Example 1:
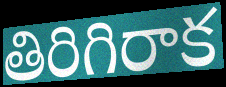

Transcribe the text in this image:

తిరిగిరాక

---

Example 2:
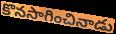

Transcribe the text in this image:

కొనసాగించినాడు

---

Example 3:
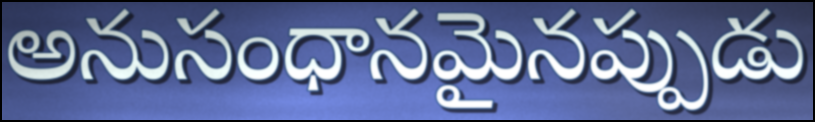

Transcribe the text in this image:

అనుసంధానమైనప్పుడు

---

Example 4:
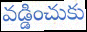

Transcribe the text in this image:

వడ్డించుకు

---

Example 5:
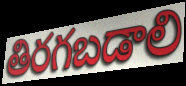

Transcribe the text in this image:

తిరగబడాలి